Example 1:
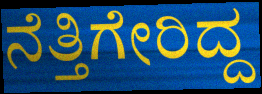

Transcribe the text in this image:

ನೆತ್ತಿಗೇರಿದ್ದ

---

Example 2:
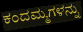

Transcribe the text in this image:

ಕಂದಮ್ಮಗಳನ್ನು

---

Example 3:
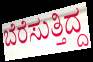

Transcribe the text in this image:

ಬೆರೆಸುತ್ತಿದ್ದ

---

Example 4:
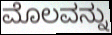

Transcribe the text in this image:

ಮೊಲವನ್ನು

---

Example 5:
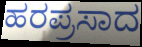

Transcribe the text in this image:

ಹರಪ್ರಸಾದ